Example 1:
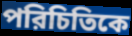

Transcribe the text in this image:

পরিচিতিকে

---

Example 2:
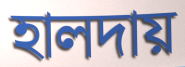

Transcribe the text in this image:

হালদায়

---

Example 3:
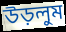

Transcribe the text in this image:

উড়লুম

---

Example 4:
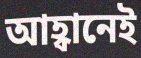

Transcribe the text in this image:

আহ্বানেই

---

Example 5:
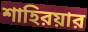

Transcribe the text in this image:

শাহিরয়ার